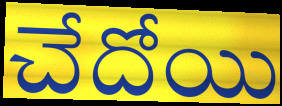
చేదోయి